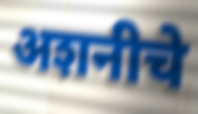
अशनीचे